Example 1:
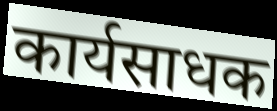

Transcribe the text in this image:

कार्यसाधक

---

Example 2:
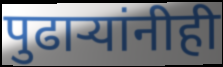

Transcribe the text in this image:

पुढाऱ्यांनीही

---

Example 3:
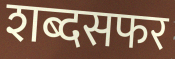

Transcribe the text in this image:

शब्दसफर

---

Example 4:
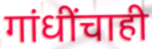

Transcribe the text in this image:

गांधींचाही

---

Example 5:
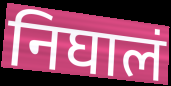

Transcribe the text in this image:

निघालं